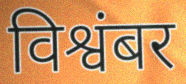
विश्वंबर